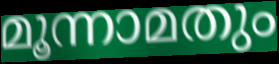
മൂന്നാമതും